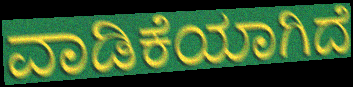
ವಾಡಿಕೆಯಾಗಿದೆ